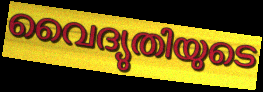
വൈദ്യുതിയുടെ